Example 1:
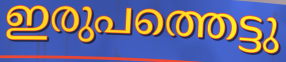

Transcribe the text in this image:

ഇരുപത്തെട്ടു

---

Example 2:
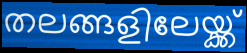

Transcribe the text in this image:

തലങ്ങളിലേയ്ക്ക്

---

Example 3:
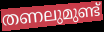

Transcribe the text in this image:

തണലുമുണ്ട്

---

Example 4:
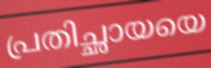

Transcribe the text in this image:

പ്രതിച്ഛായയെ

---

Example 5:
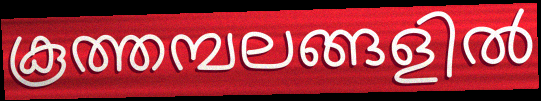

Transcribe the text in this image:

കൂത്തമ്പലങ്ങളിൽ